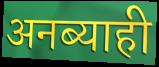
अनब्याही